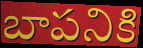
బాపనికి